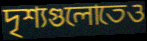
দৃশ্যগুলোতেও